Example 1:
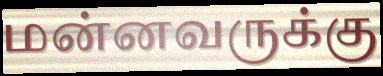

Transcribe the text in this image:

மன்னவருக்கு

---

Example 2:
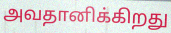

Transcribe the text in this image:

அவதானிக்கிறது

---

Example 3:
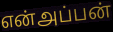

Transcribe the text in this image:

என்அப்பன்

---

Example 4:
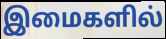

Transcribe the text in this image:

இமைகளில்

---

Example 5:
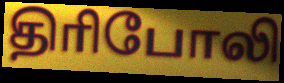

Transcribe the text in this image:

திரிபோலி